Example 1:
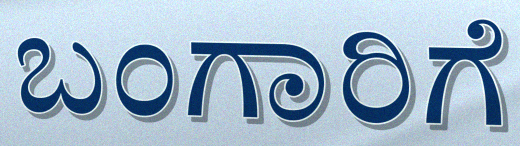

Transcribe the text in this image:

ಬಂಗಾರಿಗೆ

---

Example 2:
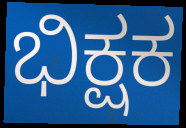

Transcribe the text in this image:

ಭಿಕ್ಷಕ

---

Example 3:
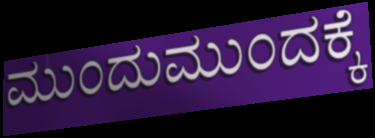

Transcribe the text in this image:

ಮುಂದುಮುಂದಕ್ಕೆ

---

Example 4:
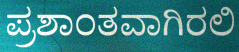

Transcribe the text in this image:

ಪ್ರಶಾಂತವಾಗಿರಲಿ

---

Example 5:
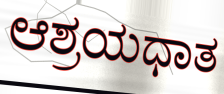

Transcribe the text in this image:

ಆಶ್ರಯಧಾತ